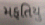
મફતિયુ